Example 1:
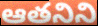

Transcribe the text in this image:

ఆతనిని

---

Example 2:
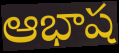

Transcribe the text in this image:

ఆభాష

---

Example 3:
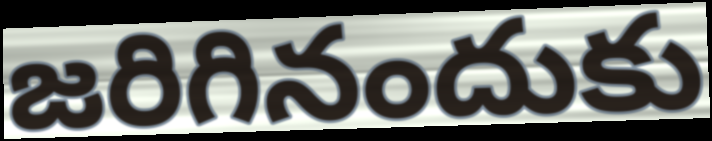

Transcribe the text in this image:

జరిగినందుకు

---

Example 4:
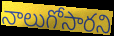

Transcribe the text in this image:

నాలుగోసారని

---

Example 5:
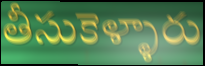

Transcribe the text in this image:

తీసుకెళ్ళారు